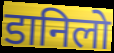
डानिलो